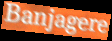
Banjagere